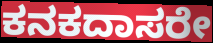
ಕನಕದಾಸರೇ